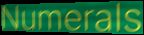
Numerals